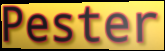
Pester